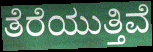
ತೆರೆಯುತ್ತಿವೆ